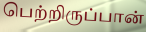
பெற்றிருப்பான்